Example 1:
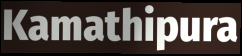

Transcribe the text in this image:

Kamathipura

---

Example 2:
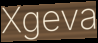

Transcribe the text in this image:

Xgeva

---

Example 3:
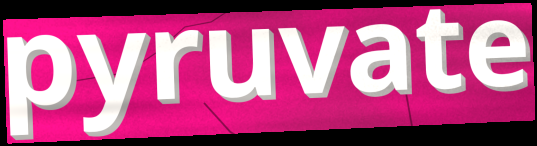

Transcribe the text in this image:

pyruvate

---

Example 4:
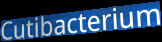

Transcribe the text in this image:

Cutibacterium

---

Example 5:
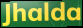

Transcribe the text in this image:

Jhalda